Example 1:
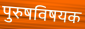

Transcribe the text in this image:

पुरुषविषयक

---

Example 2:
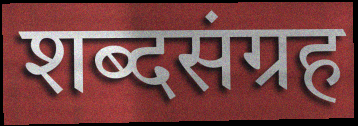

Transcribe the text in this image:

शब्दसंग्रह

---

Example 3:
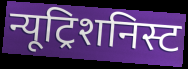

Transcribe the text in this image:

न्‍यूट्रिशनिस्‍ट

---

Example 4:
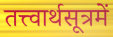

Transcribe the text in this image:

तत्त्वार्थसूत्रमें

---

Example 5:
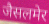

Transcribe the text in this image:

जैसलमेर